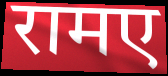
रामए